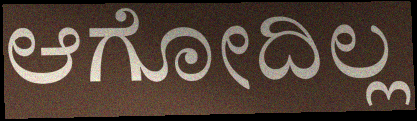
ಆಗೋದಿಲ್ಲ